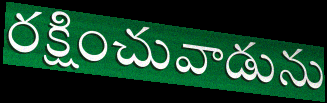
రక్షించువాడును